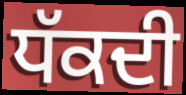
ਧੱਕਦੀ